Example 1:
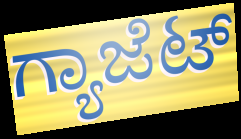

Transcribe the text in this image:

ಗ್ಯಾಜೆಟ್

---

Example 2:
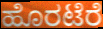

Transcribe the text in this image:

ಹೊರಟೆರೆ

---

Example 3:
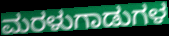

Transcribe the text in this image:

ಮರಳುಗಾಡುಗಳ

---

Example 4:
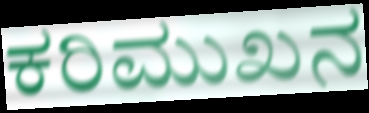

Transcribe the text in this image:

ಕರಿಮುಖನ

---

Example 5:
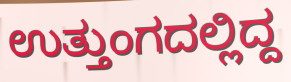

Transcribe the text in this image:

ಉತ್ತುಂಗದಲ್ಲಿದ್ದ